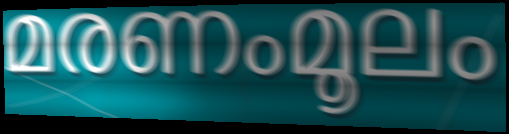
മരണംമൂലം